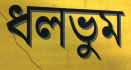
ধলভুম